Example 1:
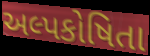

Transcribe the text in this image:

અલ્પકોષિતા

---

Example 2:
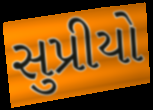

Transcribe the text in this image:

સુપ્રીયો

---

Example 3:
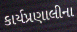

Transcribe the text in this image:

કાર્યપ્રણાલીના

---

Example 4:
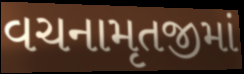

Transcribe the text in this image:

વચનામૃતજીમાં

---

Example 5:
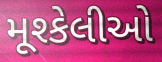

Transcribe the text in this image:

મૂશ્કેલીઓ